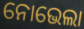
ନୋଭେଲା